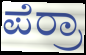
ಪೆರ್ರಾ